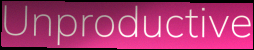
Unproductive